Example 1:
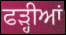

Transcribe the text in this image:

ਫੜ੍ਹੀਆਂ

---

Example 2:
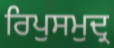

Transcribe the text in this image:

ਰਿਪੁਸਮੁਦ੍ਰ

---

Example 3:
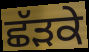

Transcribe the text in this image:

ਛੱੜਕੇ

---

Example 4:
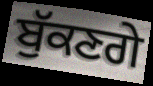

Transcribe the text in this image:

ਬੁੱਕਣਗੇ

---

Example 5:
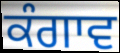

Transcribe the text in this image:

ਕੰਗਾਵ